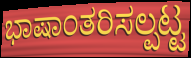
ಭಾಷಾಂತರಿಸಲ್ಪಟ್ಟ